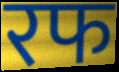
रफ